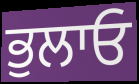
ਭੁਲਾਓ